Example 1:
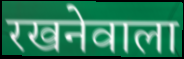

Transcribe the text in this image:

रखनेवाला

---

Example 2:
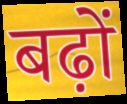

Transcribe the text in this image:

बढ़ों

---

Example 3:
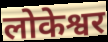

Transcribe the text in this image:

लोकेश्वर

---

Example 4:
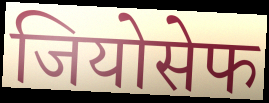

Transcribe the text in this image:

जियोसेफ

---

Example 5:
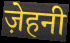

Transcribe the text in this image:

ज़ेहनी